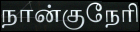
நான்குநேரி